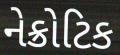
નેક્રોટિક